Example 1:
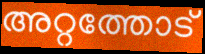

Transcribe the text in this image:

അറ്റത്തോട്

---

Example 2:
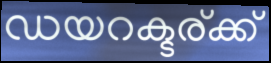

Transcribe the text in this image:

ഡയറക്ടര്ക്ക്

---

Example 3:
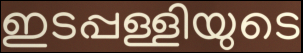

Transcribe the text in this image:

ഇടപ്പള്ളിയുടെ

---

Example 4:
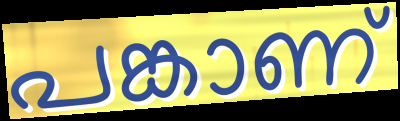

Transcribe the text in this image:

പങ്കാണ്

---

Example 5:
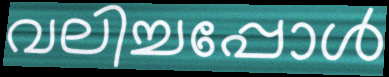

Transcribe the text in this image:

വലിച്ചപ്പോൾ